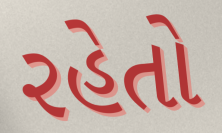
રહેતો